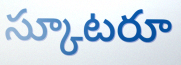
స్కూటరూ